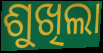
ଶୁଖିଲା